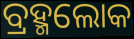
ବ୍ରହ୍ମଲୋକ